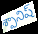
శ్పానిష్